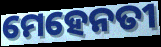
ମେହେନତୀ